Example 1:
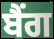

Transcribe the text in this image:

ਬੈਂਗ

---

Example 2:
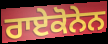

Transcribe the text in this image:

ਰਾਏਕੋਨੇਨ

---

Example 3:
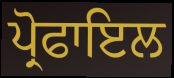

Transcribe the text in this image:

ਪ੍ਰੋਫਾਇਲ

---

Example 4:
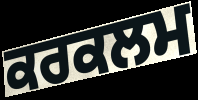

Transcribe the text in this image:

ਕਰਕਲਮ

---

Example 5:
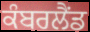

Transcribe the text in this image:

ਕੰਬਰਲੈਂਡ